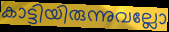
കാട്ടിയിരുന്നുവല്ലോ